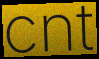
cnt